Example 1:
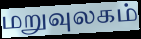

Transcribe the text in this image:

மறுவுலகம்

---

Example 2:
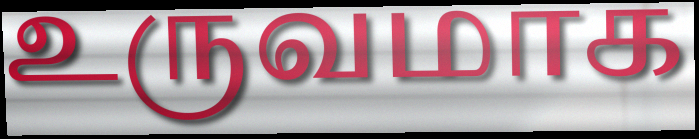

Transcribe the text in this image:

உருவமாக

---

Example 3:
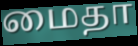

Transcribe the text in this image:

மைதா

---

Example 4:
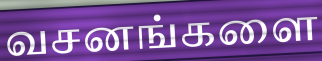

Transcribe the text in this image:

வசனங்களை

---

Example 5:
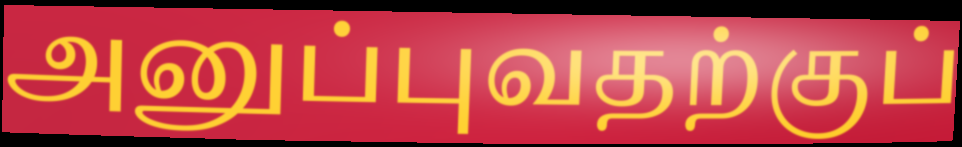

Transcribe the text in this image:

அனுப்புவதற்குப்